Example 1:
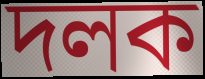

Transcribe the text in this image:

দলক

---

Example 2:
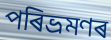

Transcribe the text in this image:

পৰিভ্ৰমণৰ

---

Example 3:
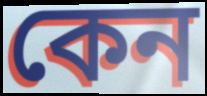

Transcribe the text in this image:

কেন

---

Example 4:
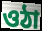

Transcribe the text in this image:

ওঠা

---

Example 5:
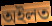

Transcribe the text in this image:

অইলত